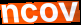
ncov